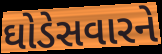
ઘોડેસવારને